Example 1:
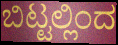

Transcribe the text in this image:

ಬಿಟ್ಟಲ್ಲಿಂದ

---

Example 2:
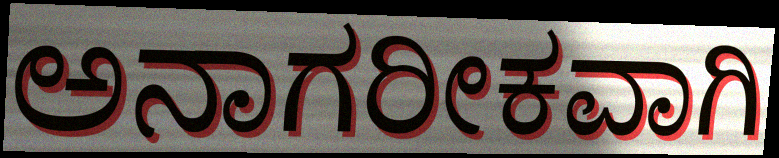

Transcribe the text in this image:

ಅನಾಗರೀಕವಾಗಿ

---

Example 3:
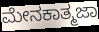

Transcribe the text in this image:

ಮೇನಕಾತ್ಮಜಾ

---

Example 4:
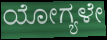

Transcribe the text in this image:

ಯೋಗ್ಯಳೇ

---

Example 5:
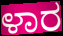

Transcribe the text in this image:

ಳಾರ